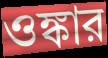
ওঙ্কার